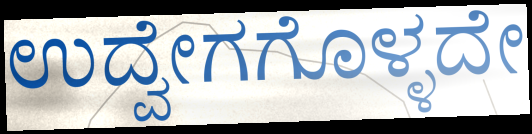
ಉದ್ವೇಗಗೊಳ್ಳದೇ